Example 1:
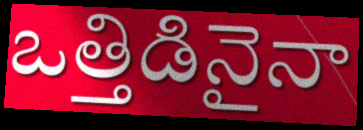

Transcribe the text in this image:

ఒత్తిడినైనా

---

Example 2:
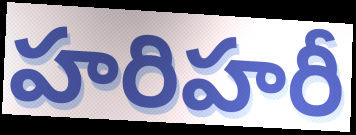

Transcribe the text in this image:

హరిహరీ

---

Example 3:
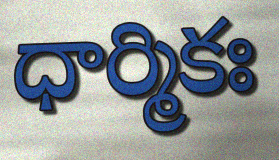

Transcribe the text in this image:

ధార్మికః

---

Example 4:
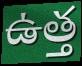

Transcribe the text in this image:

ఉత్త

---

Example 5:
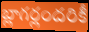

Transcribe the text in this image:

బ్లాగర్లందరికీ